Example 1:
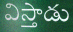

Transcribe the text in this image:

విస్తాడు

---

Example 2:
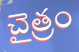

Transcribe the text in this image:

చైత్రం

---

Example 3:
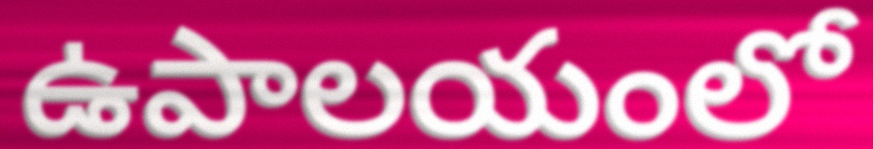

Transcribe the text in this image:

ఉపాలయంలో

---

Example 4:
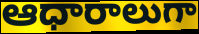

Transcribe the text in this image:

ఆధారాలుగా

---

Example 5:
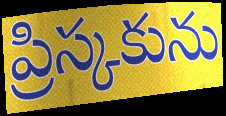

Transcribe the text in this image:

ప్రిస్కకును